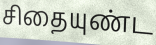
சிதையுண்ட